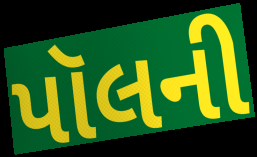
પૉલની